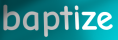
baptize